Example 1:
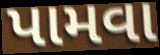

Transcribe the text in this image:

પામવા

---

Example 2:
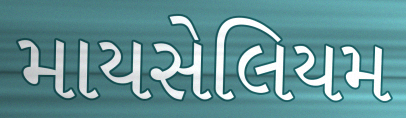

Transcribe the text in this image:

માયસેલિયમ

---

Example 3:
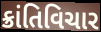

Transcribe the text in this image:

ક્રાંતિવિચાર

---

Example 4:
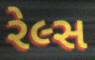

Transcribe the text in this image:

રેલ્સ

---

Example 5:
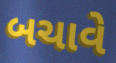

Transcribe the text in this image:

બચાવે